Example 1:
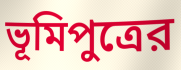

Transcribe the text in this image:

ভূমিপুত্রের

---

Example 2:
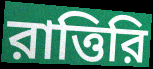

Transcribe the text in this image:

রাত্তিরি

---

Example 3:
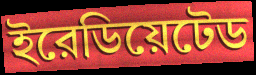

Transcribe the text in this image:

ইরেডিয়েটেড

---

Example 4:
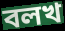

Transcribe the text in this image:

বলখ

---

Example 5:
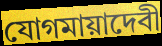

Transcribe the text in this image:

যোগমায়াদেবী